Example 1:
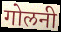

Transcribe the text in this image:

गोलनी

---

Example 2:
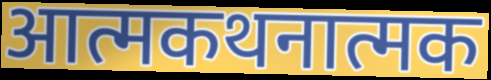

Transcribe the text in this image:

आत्मकथनात्मक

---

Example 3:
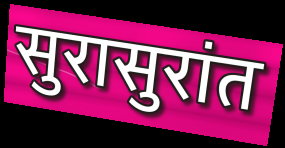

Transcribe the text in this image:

सुरासुरांत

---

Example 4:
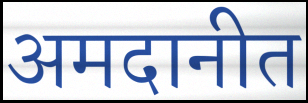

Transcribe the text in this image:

अमदानीत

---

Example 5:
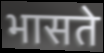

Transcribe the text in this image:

भासते